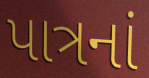
પાત્રનાં